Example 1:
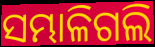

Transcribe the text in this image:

ସମ୍ଭାଳିଗଲି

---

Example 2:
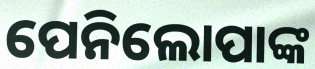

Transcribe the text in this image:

ପେନିଲୋପାଙ୍କ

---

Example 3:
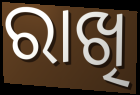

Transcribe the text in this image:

ରାଖି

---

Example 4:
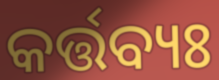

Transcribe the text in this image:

କର୍ତ୍ତବ୍ୟଃ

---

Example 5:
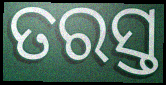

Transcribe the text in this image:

ତରସ୍ତ